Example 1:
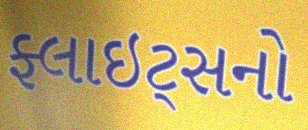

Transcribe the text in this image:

ફ્લાઇટ્સનો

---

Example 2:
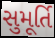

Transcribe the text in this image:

સુમૂર્તિ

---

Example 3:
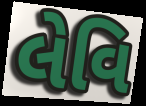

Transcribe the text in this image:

લેવિ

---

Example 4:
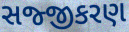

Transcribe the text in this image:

સજ્જીકરણ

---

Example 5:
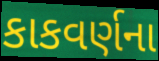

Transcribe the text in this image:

કાકવર્ણના